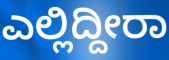
ಎಲ್ಲಿದ್ದೀರಾ